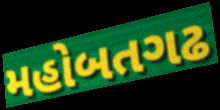
મહોબતગઢ